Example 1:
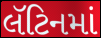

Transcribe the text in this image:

લૅટિનમાં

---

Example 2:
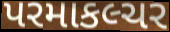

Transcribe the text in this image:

પરમાકલ્ચર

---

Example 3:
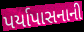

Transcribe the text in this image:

પર્યાપાસનાની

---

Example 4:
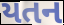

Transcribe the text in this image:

યતન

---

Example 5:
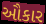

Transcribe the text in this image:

ઔકાર